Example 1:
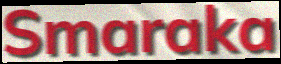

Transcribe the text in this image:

Smaraka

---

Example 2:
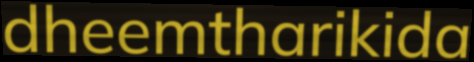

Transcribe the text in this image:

dheemtharikida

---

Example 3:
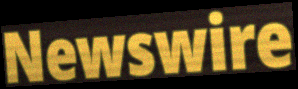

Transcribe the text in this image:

Newswire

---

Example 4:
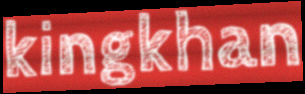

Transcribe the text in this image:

kingkhan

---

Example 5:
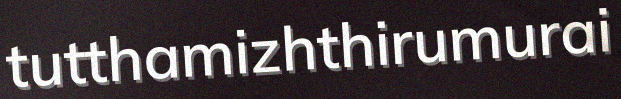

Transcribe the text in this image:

tutthamizhthirumurai